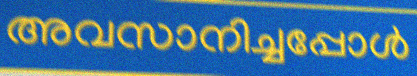
അവസാനിച്ചപ്പോൾ